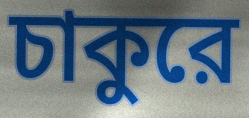
চাকুরে